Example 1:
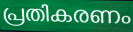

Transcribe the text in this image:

പ്രതികരണം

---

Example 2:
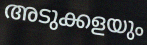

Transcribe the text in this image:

അടുക്കളയും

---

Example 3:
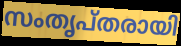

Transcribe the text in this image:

സംതൃപ്തരായി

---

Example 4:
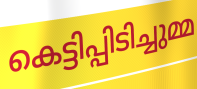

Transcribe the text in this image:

കെട്ടിപ്പിടിച്ചുമ്മ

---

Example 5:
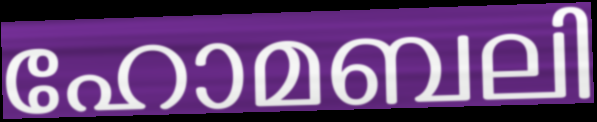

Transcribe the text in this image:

ഹോമബലി